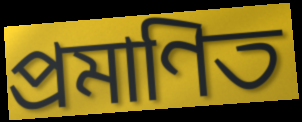
প্ৰমাণিত